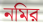
নমির